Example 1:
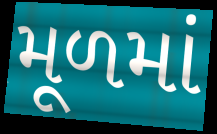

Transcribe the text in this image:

મૂળમાં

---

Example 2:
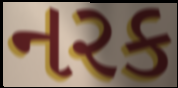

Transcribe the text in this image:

નરક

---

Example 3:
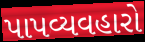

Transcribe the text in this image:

પાપવ્યવહારો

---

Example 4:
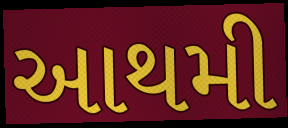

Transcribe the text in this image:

આથમી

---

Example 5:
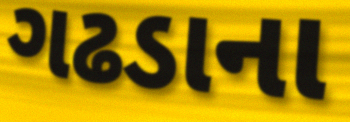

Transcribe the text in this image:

ગઢડાના